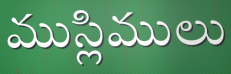
ముస్లిములు